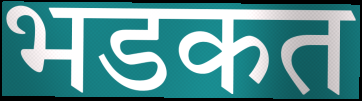
भडकत